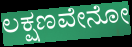
ಲಕ್ಷಣವೇನೋ